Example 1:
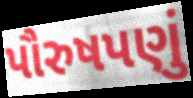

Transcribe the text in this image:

પૌરુષપણું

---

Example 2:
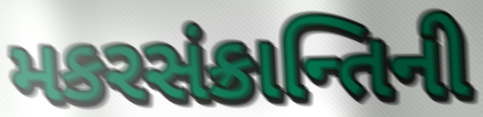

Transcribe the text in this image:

મકરસંક્રાન્તિની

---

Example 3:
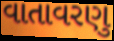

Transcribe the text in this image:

વાતાવરણુ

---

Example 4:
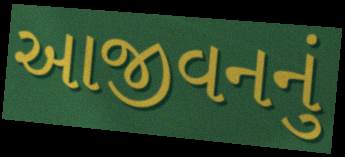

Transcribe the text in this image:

આજીવનનું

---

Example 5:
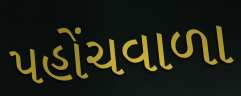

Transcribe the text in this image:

પહોંચવાળા